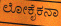
ಲೋಕೈಕನಾ